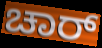
ಚಾರ್